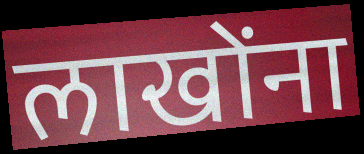
लाखोंना